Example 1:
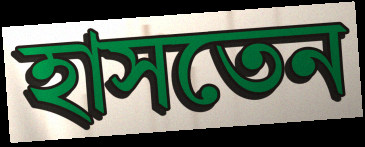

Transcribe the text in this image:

হাসতেন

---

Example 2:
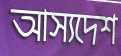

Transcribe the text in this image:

আস্যদেশ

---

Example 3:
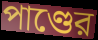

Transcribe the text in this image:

পাণ্ডের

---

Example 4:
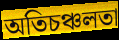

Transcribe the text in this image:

অতিচঞ্চলতা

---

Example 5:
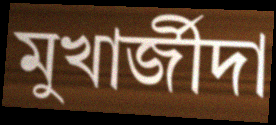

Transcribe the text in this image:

মুখার্জীদা